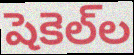
షెకెల్‌ల